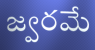
జ్వరమే